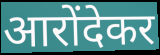
आरोंदेकर